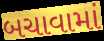
બચાવામાં